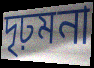
দৃঢ়মনা